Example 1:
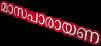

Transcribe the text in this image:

മാസപാരായണ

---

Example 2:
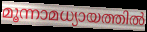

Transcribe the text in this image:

മൂന്നാമധ്യായത്തിൽ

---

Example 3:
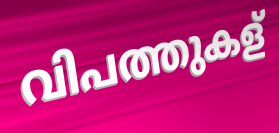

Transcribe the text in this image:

വിപത്തുകള്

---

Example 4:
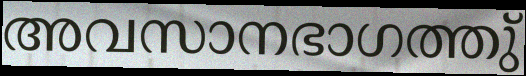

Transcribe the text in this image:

അവസാനഭാഗത്തു്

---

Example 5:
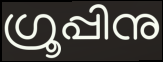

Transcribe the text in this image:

ഗ്രൂപ്പിനു